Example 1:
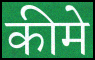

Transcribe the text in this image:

कीमे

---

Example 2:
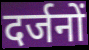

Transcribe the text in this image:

दर्जनों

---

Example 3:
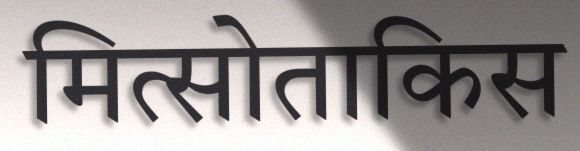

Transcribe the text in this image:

मित्सोताकिस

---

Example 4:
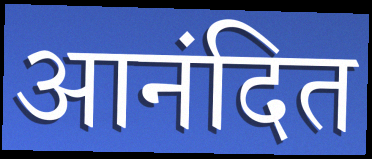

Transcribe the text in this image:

आनंदित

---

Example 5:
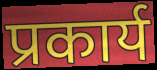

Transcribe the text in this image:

प्रकार्य